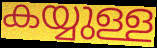
കയ്യുള്ള